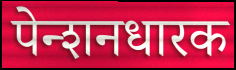
पेन्शनधारक